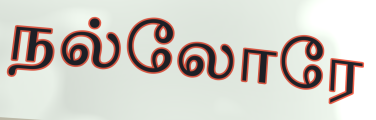
நல்லோரே